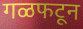
गळफटून